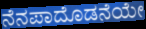
ನೆನಪಾದೊಡನೆಯೇ